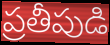
ప్రతీపుడి